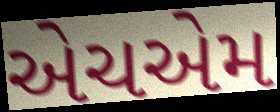
એચએમ